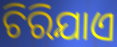
ଚିରିଯାଏ